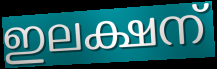
ഇലക്ഷന്